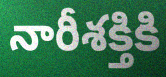
నారీశక్తికి